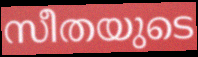
സീതയുടെ